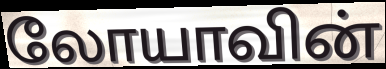
லோயாவின்